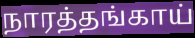
நாரத்தங்காய்